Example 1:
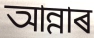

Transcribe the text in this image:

আন্নাৰ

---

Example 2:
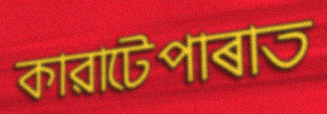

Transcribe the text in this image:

কাৱাটেপাৰাত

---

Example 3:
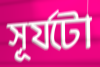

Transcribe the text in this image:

সূৰ্যটো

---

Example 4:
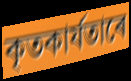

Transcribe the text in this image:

কৃতকাৰ্যতাৰে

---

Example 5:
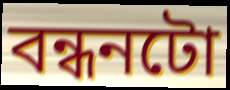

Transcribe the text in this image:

বন্ধনটো